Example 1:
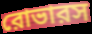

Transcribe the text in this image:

রোভারস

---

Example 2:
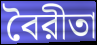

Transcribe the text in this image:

বৈরীতা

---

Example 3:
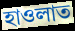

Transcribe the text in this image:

হাওলাত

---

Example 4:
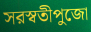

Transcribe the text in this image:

সরস্বতীপুজো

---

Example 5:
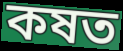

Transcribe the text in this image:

কষত